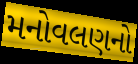
મનોવલણનો